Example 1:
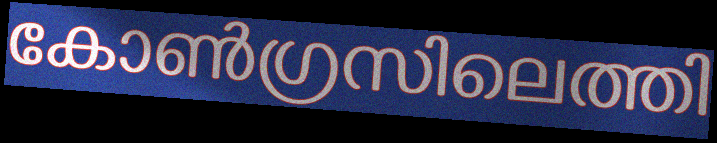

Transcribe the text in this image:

കോൺഗ്രസിലെത്തി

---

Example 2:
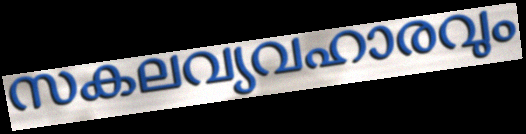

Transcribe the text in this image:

സകലവ്യവഹാരവും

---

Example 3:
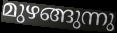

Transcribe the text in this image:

മുഴങ്ങുന്നു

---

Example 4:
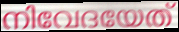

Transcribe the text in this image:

നിവേദയേത്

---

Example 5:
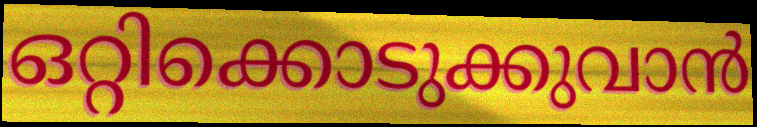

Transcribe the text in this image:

ഒറ്റിക്കൊടുക്കുവാൻ